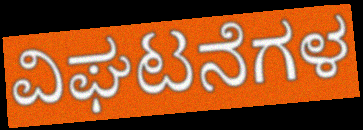
ವಿಘಟನೆಗಳ